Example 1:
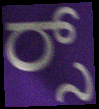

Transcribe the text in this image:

ರ್‍ಸ್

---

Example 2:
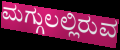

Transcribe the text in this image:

ಮಗ್ಗುಲಲ್ಲಿರುವ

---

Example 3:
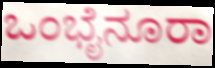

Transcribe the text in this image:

ಒಂಭೈನೂರಾ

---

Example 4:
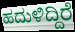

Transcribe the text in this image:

ಹದುಳಿದ್ದಿರೆ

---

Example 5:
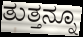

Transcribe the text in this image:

ತುತ್ತನ್ನೂ